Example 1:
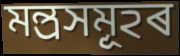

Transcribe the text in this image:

মন্ত্ৰসমূহৰ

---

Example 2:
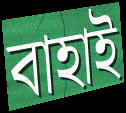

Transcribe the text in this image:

বাহাই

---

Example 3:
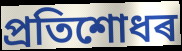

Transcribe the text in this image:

প্ৰতিশোধৰ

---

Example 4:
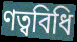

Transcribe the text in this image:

ণত্ববিধি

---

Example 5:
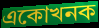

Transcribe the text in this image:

একোখনক